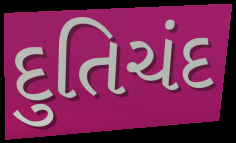
દુતિચંદ